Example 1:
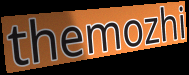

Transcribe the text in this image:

themozhi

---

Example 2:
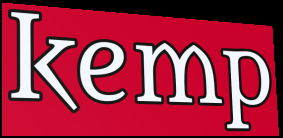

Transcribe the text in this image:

kemp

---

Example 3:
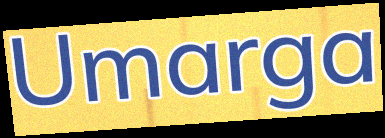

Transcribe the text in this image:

Umarga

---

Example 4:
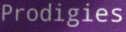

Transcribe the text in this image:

Prodigies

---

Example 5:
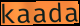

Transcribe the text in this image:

kaada